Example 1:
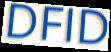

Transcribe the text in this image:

DFID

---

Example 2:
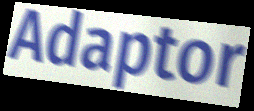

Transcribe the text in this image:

Adaptor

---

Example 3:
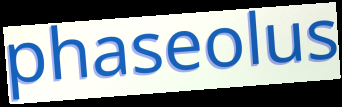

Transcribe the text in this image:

phaseolus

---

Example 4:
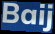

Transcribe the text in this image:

Baij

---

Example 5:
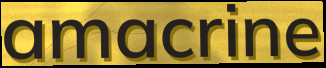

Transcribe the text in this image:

amacrine